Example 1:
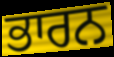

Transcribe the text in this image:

ਭਾਰਨ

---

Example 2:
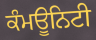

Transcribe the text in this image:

ਕੰਮਊਨਿਟੀ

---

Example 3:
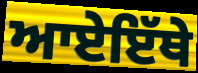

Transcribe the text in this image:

ਆਏਇੱਥੇ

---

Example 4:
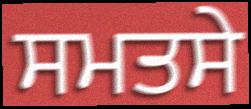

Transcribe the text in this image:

ਸਮਤਸੇ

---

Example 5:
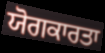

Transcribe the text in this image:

ਯੋਗਕਾਰਤਾ